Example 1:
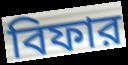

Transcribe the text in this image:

বিফার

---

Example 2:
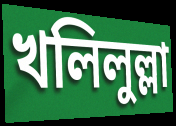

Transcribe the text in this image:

খলিলুল্লা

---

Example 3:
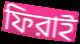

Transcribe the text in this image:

ফিরাই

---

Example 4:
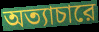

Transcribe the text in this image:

অত্যাচারে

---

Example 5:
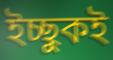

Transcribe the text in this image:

ইচ্ছুকই